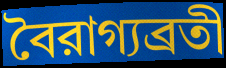
বৈরাগ্যব্রতী